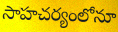
సాహచర్యంలోనూ